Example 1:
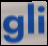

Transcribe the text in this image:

gli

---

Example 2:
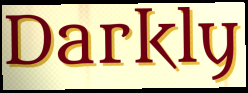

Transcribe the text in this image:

Darkly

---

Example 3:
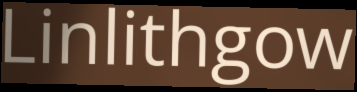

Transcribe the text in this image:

Linlithgow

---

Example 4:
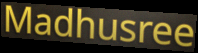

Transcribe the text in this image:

Madhusree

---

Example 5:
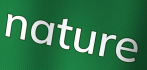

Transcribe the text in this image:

nature